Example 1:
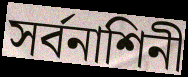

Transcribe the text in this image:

সর্বনাশিনী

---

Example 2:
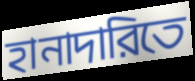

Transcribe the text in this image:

হানাদারিতে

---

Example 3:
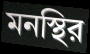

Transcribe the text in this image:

মনস্থির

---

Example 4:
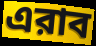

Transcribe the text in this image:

এরাব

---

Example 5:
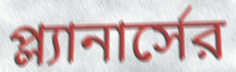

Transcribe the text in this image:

প্ল্যানার্সের